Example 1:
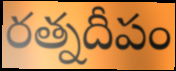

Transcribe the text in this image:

రత్నదీపం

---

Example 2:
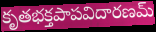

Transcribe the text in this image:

కృతభక్తపాపవిదారణమ్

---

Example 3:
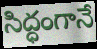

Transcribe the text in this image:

సిద్ధంగానే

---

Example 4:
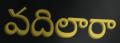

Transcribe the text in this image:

వదిలారా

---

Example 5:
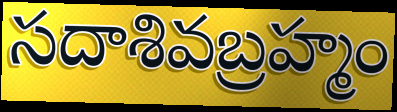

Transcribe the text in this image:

సదాశివబ్రహ్మం